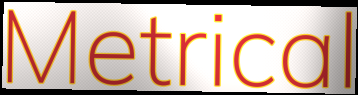
Metrical